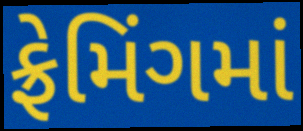
ફ્રેમિંગમાં